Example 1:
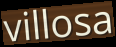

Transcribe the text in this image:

villosa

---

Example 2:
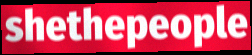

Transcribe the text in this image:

shethepeople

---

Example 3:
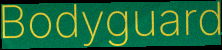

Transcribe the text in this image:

Bodyguard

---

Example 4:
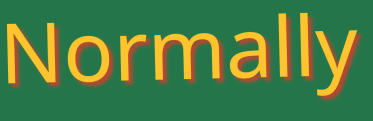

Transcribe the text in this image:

Normally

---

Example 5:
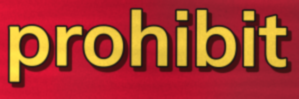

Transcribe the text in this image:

prohibit